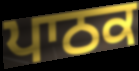
ਪਾਠਕ